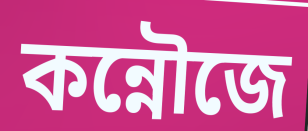
কন্নৌজে